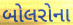
બોલરોના